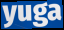
yuga